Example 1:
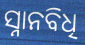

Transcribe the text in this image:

ସ୍ନାନବିଧି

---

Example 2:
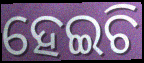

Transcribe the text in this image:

ହେଇଚି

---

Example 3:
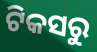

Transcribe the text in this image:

ଟିକସରୁ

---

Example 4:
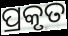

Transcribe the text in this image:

ପ୍ରକୃତ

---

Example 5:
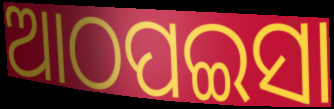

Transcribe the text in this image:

ଆଠପଇସା